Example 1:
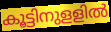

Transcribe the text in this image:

കൂട്ടിനുളളിൽ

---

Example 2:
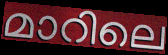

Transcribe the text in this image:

മാറിലെ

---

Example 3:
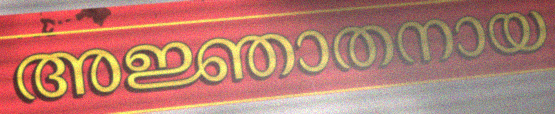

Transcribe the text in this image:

അജ്ഞാതനായ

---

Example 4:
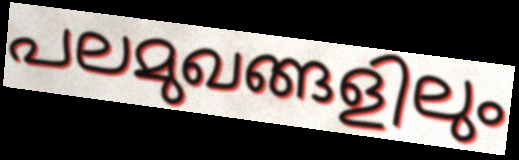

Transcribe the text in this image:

പലമുഖങ്ങളിലും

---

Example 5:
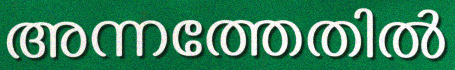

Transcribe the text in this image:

അന്നത്തേതിൽ